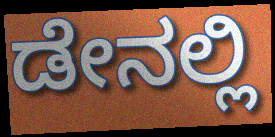
ಡೇನಲ್ಲಿ